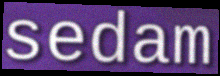
sedam